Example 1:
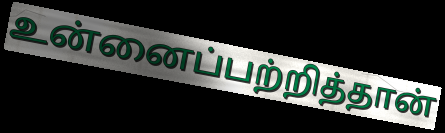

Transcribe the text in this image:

உன்னைப்பற்றித்தான்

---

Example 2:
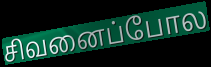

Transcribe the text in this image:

சிவனைப்போல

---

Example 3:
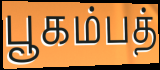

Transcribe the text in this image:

பூகம்பத்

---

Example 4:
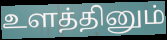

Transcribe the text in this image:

உளத்தினும்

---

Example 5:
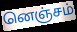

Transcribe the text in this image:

னெஞ்சம்